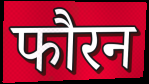
फौरन